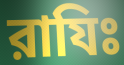
রাযিঃ